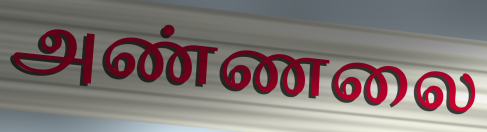
அண்ணலை